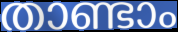
താണ്ടാം